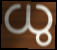
ധു